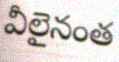
వీలైనంత